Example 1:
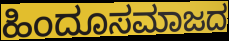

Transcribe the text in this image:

ಹಿಂದೂಸಮಾಜದ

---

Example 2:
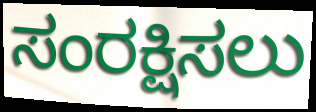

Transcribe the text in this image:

ಸಂರಕ್ಷಿಸಲು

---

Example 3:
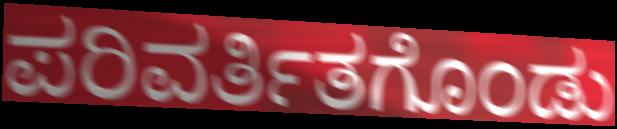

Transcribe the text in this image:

ಪರಿವರ್ತಿತಗೊಂಡು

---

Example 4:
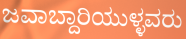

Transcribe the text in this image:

ಜವಾಬ್ದಾರಿಯುಳ್ಳವರು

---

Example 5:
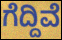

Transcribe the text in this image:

ಗೆದ್ದಿವೆ